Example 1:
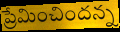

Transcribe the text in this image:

ప్రేమించిందన్న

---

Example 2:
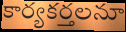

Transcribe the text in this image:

కార్యకర్తలనూ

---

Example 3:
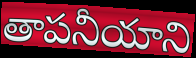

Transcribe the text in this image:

తాపనీయాని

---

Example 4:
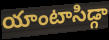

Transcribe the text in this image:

యాంటాసిడ్గా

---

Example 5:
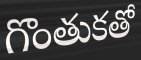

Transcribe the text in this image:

గొంతుకతో